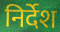
निर्देश